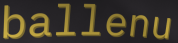
ballenu